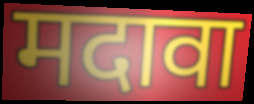
मदावा